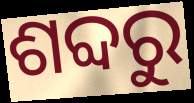
ଶବ୍ଦରୁ